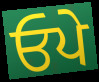
ਓਪੇ